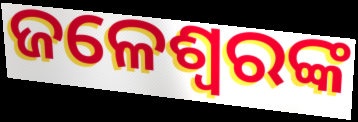
ଜଳେଶ୍ଵରଙ୍କ